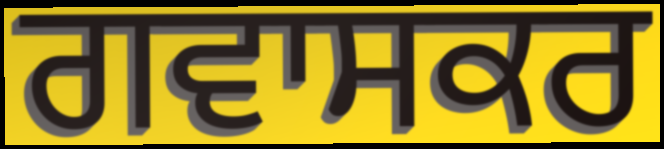
ਗਵਾਸਕਰ